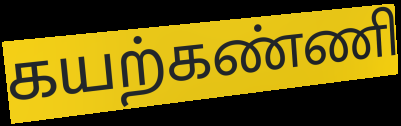
கயற்கண்ணி